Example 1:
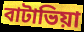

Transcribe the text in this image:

বাটাভিয়া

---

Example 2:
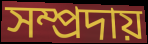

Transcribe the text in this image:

সম্প্রদায়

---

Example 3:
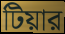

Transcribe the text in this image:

টিয়ার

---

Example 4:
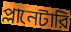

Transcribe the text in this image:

প্লানেটারি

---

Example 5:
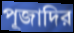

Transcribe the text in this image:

পূজাদির